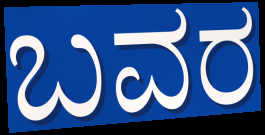
ಬವರ